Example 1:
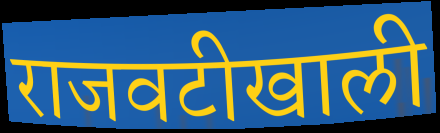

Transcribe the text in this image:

राजवटीखाली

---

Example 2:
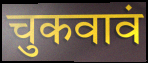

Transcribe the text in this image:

चुकवावं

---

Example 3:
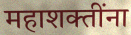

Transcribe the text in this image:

महाशक्तींना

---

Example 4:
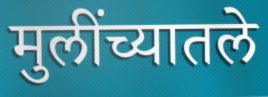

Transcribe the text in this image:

मुलींच्यातले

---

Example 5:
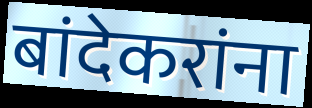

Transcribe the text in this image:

बांदेकरांना